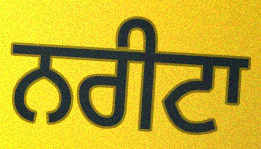
ਨਰੀਟਾ